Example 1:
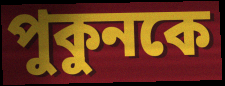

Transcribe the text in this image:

পুকুনকে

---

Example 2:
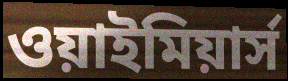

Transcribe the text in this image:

ওয়াইমিয়ার্স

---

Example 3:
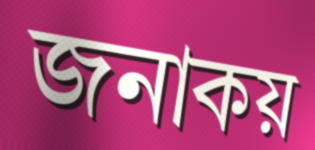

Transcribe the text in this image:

জনাকয়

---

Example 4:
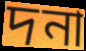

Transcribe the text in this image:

দনা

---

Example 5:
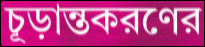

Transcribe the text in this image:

চূড়ান্তকরণের